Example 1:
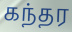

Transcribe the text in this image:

கந்தர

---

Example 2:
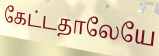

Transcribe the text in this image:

கேட்டதாலேயே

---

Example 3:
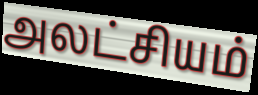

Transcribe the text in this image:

அலட்சியம்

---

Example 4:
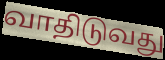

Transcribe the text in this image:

வாதிடுவது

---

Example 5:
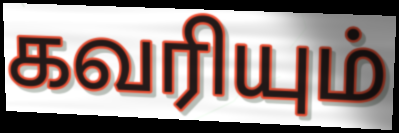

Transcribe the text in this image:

கவரியும்